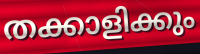
തക്കാളിക്കും